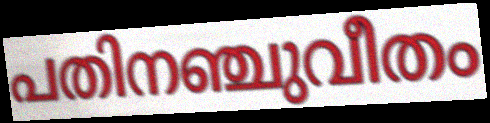
പതിനഞ്ചുവീതം